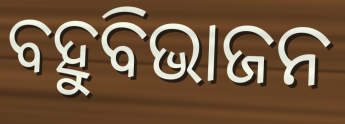
ବହୁବିଭାଜନ